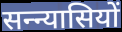
सन्न्यासियों